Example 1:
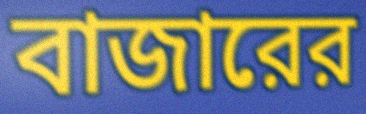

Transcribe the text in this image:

বাজারের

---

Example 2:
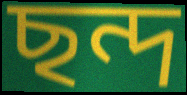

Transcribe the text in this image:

ছন্দ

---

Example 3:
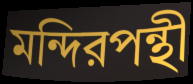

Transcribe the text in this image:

মন্দিরপন্থী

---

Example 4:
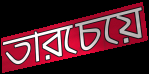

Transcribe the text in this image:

তারচেয়ে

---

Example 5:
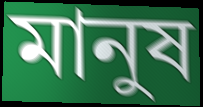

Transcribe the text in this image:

মানুষ